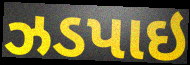
ઝડપાઇ